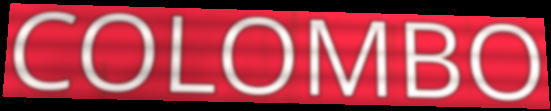
COLOMBO